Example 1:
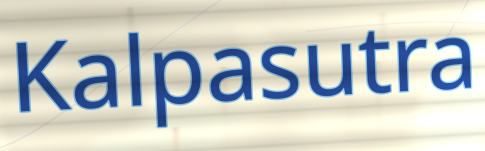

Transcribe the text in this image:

Kalpasutra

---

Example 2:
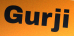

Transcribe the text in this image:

Gurji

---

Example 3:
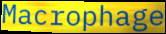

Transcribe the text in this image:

Macrophage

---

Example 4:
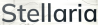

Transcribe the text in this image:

Stellaria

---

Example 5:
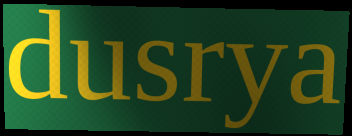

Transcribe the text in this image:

dusrya